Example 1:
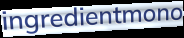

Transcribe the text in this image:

ingredientmono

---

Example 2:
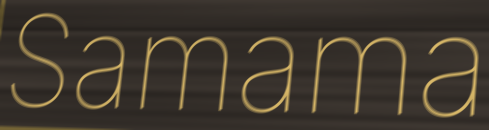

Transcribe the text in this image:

Samama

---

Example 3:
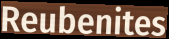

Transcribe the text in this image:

Reubenites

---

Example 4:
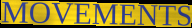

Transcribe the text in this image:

MOVEMENTS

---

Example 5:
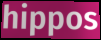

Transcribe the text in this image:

hippos